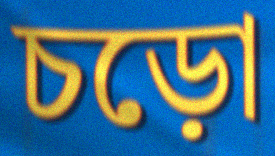
চড়ো